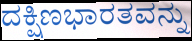
ದಕ್ಷಿಣಭಾರತವನ್ನು